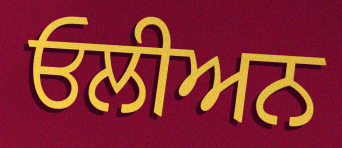
ਓਲੀਅਨ